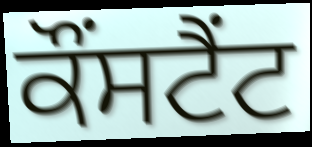
ਕੌਂਸਟੈਂਟ